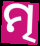
ତ୍ମ